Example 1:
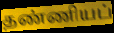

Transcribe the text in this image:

தண்ணியப்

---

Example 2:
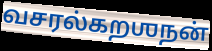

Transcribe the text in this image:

வசரல்கறஶநன்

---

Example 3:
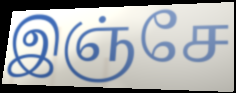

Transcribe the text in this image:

இஞ்சே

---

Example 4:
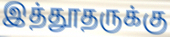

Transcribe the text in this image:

இத்தூதருக்கு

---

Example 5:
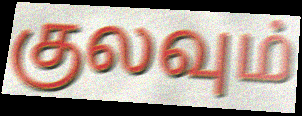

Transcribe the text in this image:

குலவும்